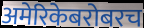
अमेरिकेबरोबरच